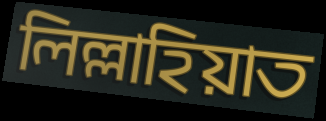
লিল্লাহিয়াত